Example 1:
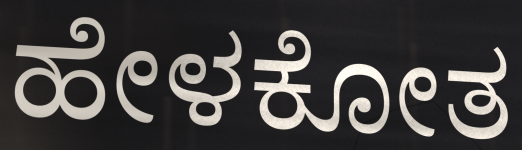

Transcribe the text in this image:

ಹೇಳಕೋತ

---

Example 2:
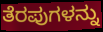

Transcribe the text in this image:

ತೆರಪುಗಳನ್ನು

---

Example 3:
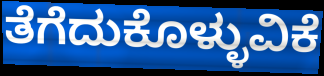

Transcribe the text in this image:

ತೆಗೆದುಕೊಳ್ಳುವಿಕೆ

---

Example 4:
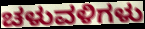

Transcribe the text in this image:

ಚಳುವಳಿಗಳು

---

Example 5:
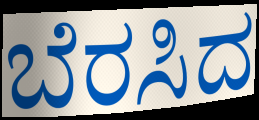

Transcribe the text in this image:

ಬೆರಸಿದ